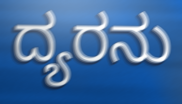
ದ್ಯರನು